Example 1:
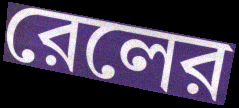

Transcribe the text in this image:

রেলের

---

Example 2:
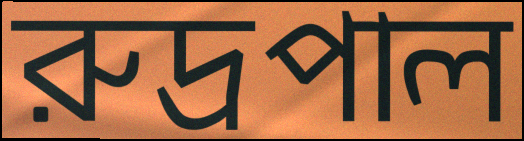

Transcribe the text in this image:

রুদ্রপাল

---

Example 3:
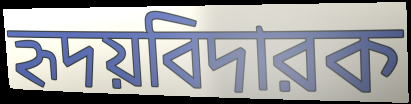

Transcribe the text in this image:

হৃদয়বিদারক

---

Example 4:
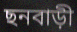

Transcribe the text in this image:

ছনবাড়ী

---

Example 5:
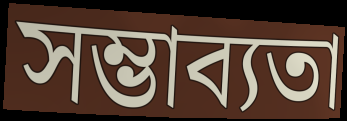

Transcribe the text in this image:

সম্ভাব্যতা